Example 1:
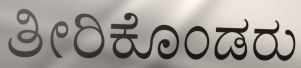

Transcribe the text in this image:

ತೀರಿಕೊಂಡರು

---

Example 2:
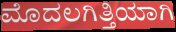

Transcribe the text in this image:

ಮೊದಲಗಿತ್ತಿಯಾಗಿ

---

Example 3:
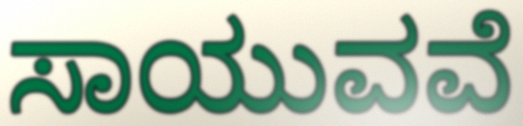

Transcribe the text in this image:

ಸಾಯುವವೆ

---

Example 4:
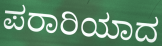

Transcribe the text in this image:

ಪರಾರಿಯಾದ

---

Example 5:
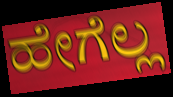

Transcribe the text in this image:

ಹೇಗೆಲ್ಲ